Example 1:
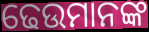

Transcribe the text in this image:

ଢେଉମାନଙ୍କ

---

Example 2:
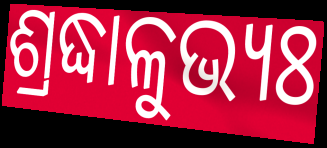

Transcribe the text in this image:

ଶ୍ରଦ୍ଧାଳୁଭ୍ୟଃ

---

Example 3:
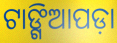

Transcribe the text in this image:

ଟାଙ୍ଗିଆପଡ଼ା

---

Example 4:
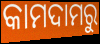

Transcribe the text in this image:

କାମଦାମରୁ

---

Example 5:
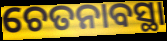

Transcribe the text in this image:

ଚେତନାବସ୍ଥା